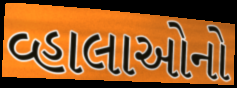
વ્હાલાઓનો